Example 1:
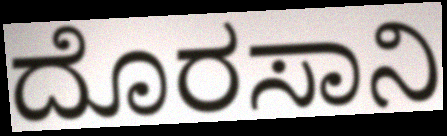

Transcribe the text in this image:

ದೊರಸಾನಿ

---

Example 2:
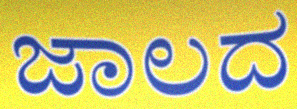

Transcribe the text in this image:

ಜಾಲದ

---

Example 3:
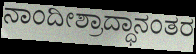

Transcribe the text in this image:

ನಾಂದೀಶ್ರಾದ್ಧಾನಂತರ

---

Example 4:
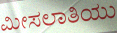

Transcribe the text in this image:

ಮೀಸಲಾತಿಯು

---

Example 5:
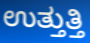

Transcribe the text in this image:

ಉತ್ತುತ್ತಿ